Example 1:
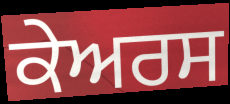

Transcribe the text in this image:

ਕੇਅਰਸ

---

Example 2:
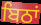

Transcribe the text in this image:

ਬਿਠਾਂ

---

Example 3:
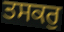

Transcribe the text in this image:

ਤਸਕਰੁ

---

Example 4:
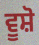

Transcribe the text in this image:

ਵੂਸ਼ੋ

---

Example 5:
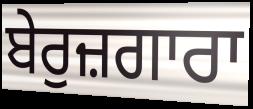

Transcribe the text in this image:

ਬੇਰੁਜ਼ਗਾਰਾ